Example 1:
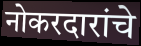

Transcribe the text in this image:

नोकरदारांचे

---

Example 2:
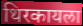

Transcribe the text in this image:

थिरकायला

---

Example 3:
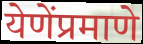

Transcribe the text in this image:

येणेंप्रमाणे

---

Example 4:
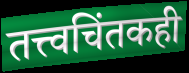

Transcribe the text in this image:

तत्त्वचिंतकही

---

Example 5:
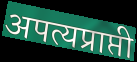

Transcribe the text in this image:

अपत्यप्राप्ती